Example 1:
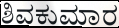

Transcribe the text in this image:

ಶಿವಕುಮಾರ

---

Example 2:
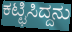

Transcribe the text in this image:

ಕಟ್ಟಿಸಿದ್ದನು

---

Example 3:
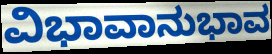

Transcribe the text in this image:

ವಿಭಾವಾನುಭಾವ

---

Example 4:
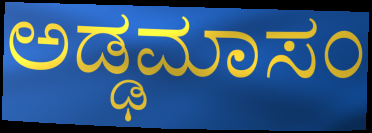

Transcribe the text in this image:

ಅಡ್ಢಮಾಸಂ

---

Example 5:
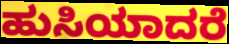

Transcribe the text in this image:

ಹುಸಿಯಾದರೆ